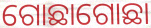
ଗୋଛାଗୋଛା